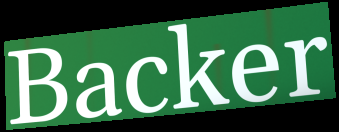
Backer